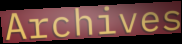
Archives